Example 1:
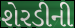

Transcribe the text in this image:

શેરડીની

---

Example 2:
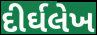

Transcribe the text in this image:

દીર્ઘલેખ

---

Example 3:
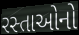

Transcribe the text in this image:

રસ્તાઓનો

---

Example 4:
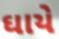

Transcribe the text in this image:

ઘાયે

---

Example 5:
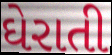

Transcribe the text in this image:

ઘેરાતી